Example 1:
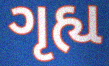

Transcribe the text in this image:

ગૃહ્ય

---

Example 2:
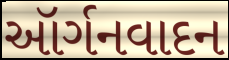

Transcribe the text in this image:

ઑર્ગનવાદન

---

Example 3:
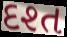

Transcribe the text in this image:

દશ્ત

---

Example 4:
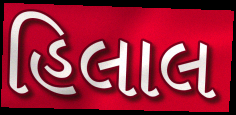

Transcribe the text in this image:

હિલાલ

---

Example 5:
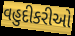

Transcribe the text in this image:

વહુદીકરીઓ